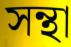
সন্থা